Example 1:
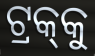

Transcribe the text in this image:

ଟ୍ରକ୍‍କୁ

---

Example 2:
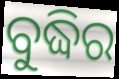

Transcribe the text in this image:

ବୁଦ୍ଧିର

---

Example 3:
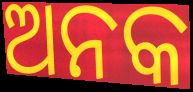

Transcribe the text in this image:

ଅନକ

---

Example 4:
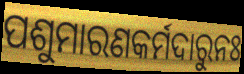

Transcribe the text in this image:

ପଶୁମାରଣକର୍ମଦାରୁନଃ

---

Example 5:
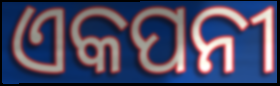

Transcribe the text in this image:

ଏକପନୀ